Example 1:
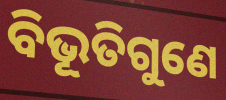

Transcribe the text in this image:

ବିଭୂତିଗୁଣେ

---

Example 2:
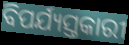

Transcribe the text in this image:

ବିପର୍ଯ୍ୟସ୍ତକାରୀ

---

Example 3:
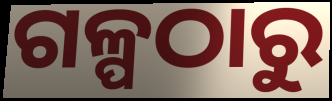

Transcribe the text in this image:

ଗଳ୍ପଠାରୁ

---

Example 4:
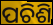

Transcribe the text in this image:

ପଚିଶି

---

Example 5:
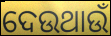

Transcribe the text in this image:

ଦେଉଥାଉଁ